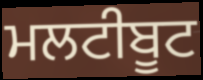
ਮਲਟੀਬੂਟ